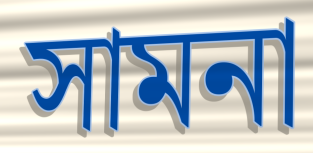
সামনা